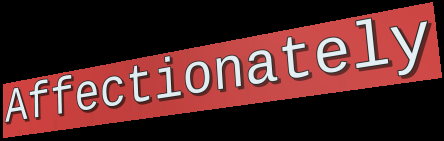
Affectionately